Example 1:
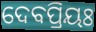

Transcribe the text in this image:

ଦେବପ୍ରିୟଃ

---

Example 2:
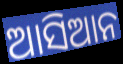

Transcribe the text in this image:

ଆସିଆନ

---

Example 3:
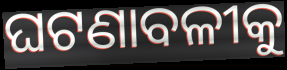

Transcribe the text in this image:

ଘଟଣାବଳୀକୁ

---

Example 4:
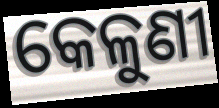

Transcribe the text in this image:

କେଳୁଣୀ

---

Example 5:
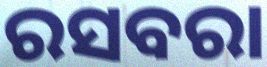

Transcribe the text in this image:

ରସବରା